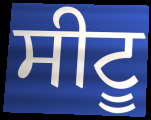
ਸੀਟੂ